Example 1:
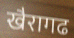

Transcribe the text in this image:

खैरागढ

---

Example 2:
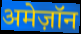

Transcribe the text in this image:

अमेज़ॉन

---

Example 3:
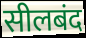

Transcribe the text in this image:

सीलबंद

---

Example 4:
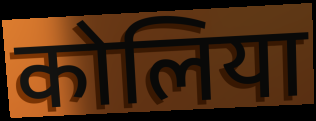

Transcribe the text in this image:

कोलिया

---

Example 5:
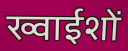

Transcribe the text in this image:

ख्वाईशों